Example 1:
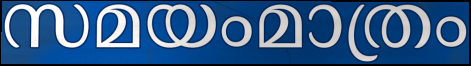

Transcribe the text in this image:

സമയംമാത്രം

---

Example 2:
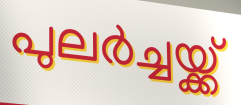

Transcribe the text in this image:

പുലർച്ചയ്ക്ക്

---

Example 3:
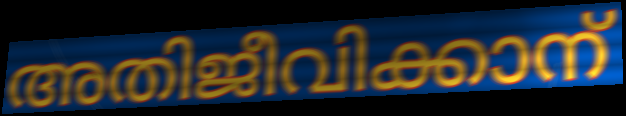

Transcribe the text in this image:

അതിജീവിക്കാന്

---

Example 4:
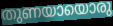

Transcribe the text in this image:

തുണയായൊരു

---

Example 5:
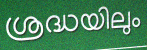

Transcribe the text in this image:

ശ്രദ്ധയിലും